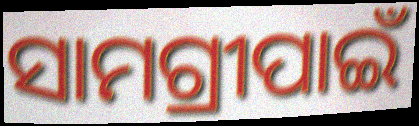
ସାମଗ୍ରୀପାଇଁ